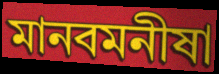
মানবমনীষা